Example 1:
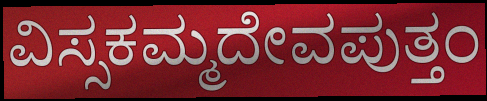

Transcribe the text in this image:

ವಿಸ್ಸಕಮ್ಮದೇವಪುತ್ತಂ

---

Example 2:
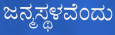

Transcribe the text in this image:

ಜನ್ಮಸ್ಥಳವೆಂದು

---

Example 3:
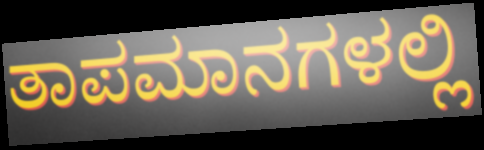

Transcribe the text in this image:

ತಾಪಮಾನಗಳಲ್ಲಿ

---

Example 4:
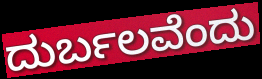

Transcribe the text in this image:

ದುರ್ಬಲವೆಂದು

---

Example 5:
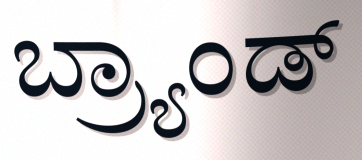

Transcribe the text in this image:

ಬ್ರ್ಯಾಂಡ್